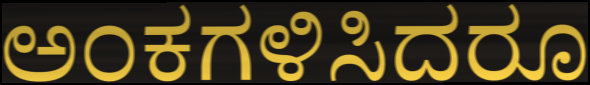
ಅಂಕಗಳಿಸಿದರೂ